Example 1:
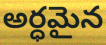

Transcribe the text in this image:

అర్ధమైన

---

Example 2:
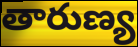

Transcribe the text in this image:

తారుణ్య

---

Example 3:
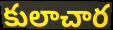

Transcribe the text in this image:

కులాచార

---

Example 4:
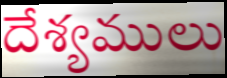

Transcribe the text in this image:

దేశ్యములు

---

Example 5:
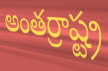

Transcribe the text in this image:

అంతర్రాష్ట్ర